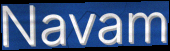
Navam